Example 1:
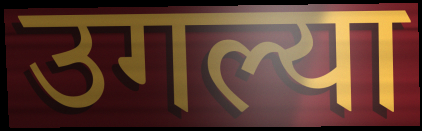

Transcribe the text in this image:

उगल्या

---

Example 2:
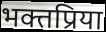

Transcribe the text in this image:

भक्तप्रिया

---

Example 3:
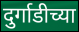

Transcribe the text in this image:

दुर्गाडीच्या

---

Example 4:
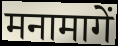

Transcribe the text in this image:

मनामागें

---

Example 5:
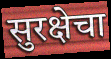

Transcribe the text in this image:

सुरक्षेचा